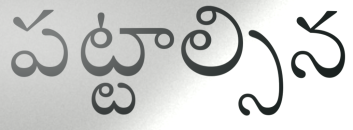
పట్టాల్సిన